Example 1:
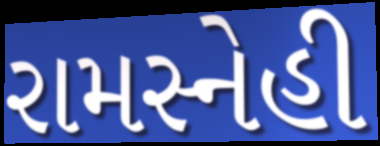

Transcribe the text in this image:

રામસ્નેહી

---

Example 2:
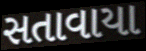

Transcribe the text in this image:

સતાવાયા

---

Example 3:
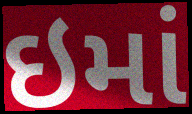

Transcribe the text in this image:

ઇમાં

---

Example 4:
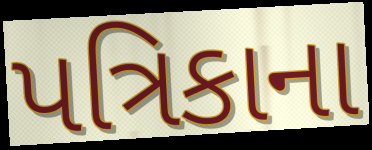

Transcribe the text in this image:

પત્રિકાના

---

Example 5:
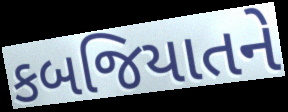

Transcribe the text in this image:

કબજિયાતને